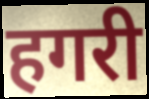
हगरी